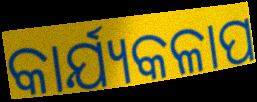
କାର୍ଯ୍ୟକଳାପ